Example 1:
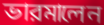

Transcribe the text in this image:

ভারমালেন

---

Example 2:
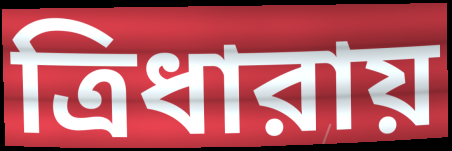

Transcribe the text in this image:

ত্রিধারায়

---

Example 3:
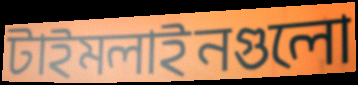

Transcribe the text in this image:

টাইমলাইনগুলো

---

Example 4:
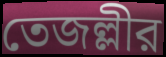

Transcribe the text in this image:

তেজল্লীর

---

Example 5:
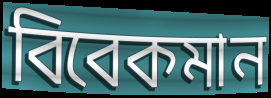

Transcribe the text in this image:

বিবেকমান